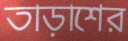
তাড়াশের